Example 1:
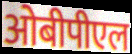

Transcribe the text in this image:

ओबीपीएल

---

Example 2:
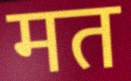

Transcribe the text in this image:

मत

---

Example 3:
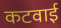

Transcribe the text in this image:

कटवाई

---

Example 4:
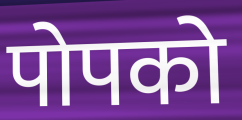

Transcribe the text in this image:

पोपको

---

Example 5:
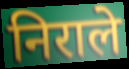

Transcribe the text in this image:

निराले